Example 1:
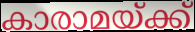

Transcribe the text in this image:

കാരാമയ്ക്ക്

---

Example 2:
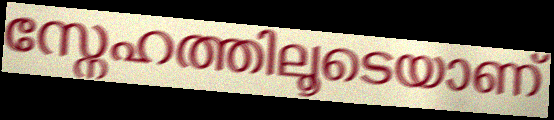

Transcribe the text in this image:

സ്നേഹത്തിലൂടെയാണ്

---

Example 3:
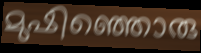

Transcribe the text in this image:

മുഷിഞ്ഞൊരു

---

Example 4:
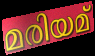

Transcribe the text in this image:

മരിയമ്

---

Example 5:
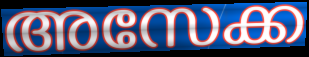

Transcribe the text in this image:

അസേക്ക